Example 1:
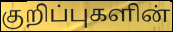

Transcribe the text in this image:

குறிப்புகளின்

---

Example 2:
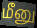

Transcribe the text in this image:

மீனு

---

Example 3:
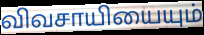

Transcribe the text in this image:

விவசாயியையும்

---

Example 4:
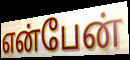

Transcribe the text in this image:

என்பேன்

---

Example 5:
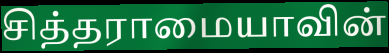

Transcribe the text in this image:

சித்தராமையாவின்